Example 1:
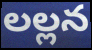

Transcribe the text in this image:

లల్లన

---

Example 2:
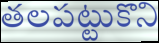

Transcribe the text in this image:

తలపట్టుకొని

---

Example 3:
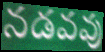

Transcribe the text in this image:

నడవవు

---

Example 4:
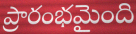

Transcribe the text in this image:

ప్రారంభమైంది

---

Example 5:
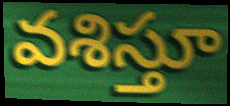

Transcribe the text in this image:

వశిస్తూ